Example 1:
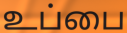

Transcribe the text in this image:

உப்பை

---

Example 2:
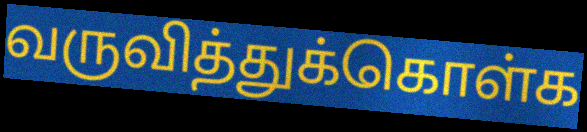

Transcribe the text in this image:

வருவித்துக்கொள்க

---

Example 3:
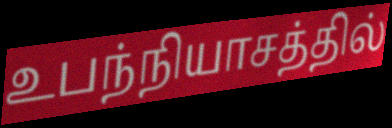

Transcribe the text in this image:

உபந்நியாசத்தில்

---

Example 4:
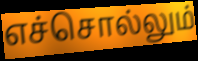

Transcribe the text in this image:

எச்சொல்லும்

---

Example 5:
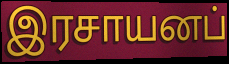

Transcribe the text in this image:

இரசாயனப்